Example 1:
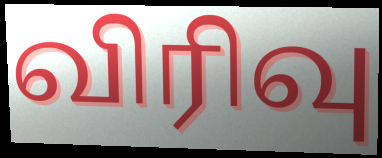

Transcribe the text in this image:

விரிவு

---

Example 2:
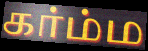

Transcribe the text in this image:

கர்ம்ம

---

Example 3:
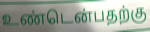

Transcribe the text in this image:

உண்டென்பதற்கு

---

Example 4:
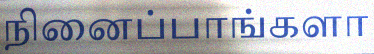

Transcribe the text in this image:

நினைப்பாங்களா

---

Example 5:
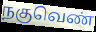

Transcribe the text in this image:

நகுவெண்